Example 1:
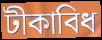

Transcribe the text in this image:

টীকাবিধ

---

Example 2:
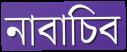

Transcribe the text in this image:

নাবাচিব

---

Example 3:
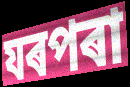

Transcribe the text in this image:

যৰপৰা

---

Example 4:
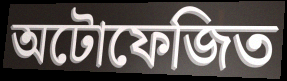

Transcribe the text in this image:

অটোফেজিত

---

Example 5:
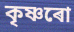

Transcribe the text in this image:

কৃষ্ণৰো